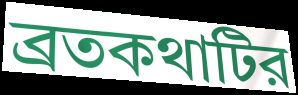
ব্রতকথাটির